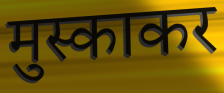
मुस्काकर